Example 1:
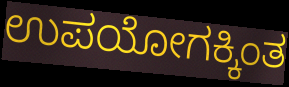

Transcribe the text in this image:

ಉಪಯೋಗಕ್ಕಿಂತ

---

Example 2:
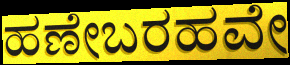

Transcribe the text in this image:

ಹಣೇಬರಹವೇ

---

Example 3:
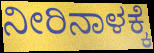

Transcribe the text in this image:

ನೀರಿನಾಳಕ್ಕೆ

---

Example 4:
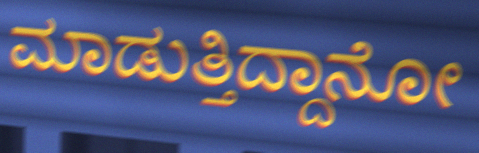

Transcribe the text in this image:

ಮಾಡುತ್ತಿದ್ದಾನೋ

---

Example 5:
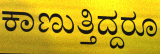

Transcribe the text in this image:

ಕಾಣುತ್ತಿದ್ದರೂ